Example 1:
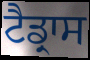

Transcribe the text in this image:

ਟੈਡ੍ਰਾਸ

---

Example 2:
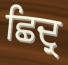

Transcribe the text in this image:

ਛਿਦ੍ਰ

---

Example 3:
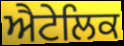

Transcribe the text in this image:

ਐਟੇਲਿਕ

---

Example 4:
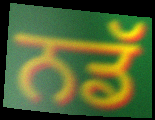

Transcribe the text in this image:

ਨਡੱ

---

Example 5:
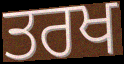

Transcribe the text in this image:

ਤਰਖ